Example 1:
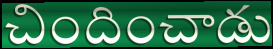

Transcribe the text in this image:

చిందించాడు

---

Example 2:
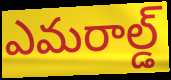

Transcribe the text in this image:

ఎమరాల్డ్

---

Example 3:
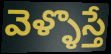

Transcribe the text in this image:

వెళ్ళొస్తే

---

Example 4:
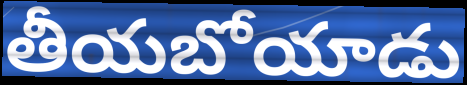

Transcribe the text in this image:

తీయబోయాడు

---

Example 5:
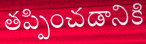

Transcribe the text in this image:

తప్పించడానికి